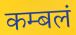
कम्बलं